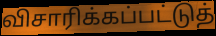
விசாரிக்கப்பட்டுத்